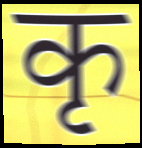
कृ